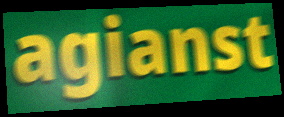
agianst